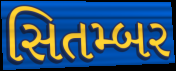
સિતમ્બર